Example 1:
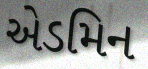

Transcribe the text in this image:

એડમિન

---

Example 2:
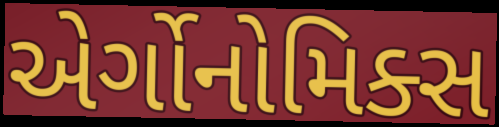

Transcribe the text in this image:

એર્ગોનોમિક્સ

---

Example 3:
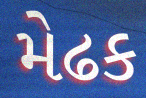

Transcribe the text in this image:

મેઢક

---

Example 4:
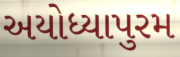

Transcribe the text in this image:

અયોધ્યાપુરમ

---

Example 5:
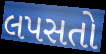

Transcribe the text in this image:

લપસતો